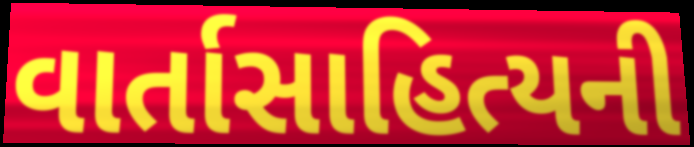
વાર્તાસાહિત્યની